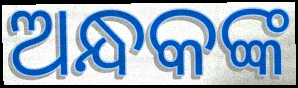
ଅନ୍ଧକଙ୍କ